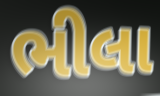
ભીલા